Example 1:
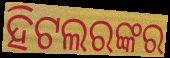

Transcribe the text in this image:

ହିଟଲରଙ୍କର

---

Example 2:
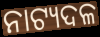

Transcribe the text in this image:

ନାଟ୍ୟଦଳ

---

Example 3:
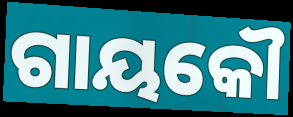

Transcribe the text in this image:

ଗାୟକୌ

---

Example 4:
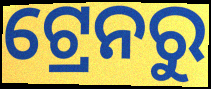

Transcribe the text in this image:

ଟ୍ରେନରୁ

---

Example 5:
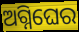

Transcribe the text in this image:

ଅଗ୍ନିଘେର